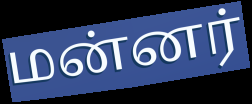
மன்னர்